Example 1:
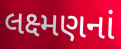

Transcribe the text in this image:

લક્ષ્મણનાં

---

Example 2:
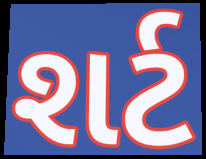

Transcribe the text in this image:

શર્ટ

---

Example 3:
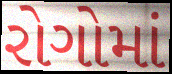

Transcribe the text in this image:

રોગોમાં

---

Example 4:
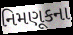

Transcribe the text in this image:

નિમણૂકના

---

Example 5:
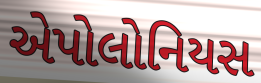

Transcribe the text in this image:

એપોલોનિયસ